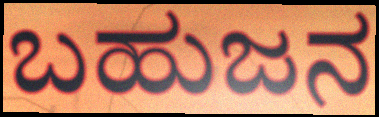
ಬಹುಜನ